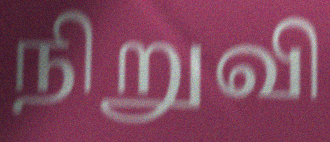
நிறுவி